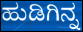
ಹುಡಿಗಿನ್ನ